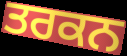
ਤਰਕਨ